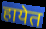
हायेत